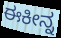
ಈಕೀನ್ನ